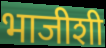
भाजीशी